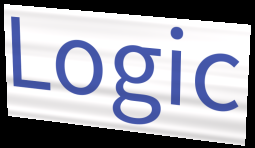
Logic